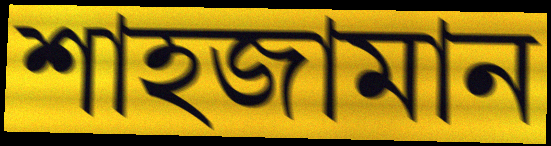
শাহজামান